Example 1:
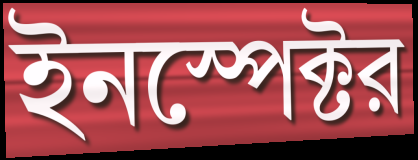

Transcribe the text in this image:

ইনস্পেক্টর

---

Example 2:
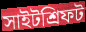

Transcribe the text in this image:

সাইটশ্রিফট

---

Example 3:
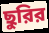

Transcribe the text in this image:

ছুরির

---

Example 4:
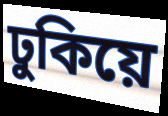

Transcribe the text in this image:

ঢুকিয়ে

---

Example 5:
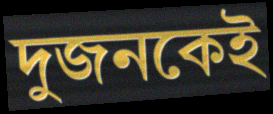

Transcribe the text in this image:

দুজনকেই